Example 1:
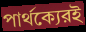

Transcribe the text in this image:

পার্থক্যেরই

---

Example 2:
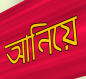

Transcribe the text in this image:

আনিয়ে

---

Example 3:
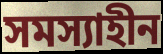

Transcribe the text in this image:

সমস্যাহীন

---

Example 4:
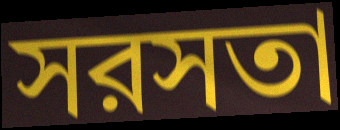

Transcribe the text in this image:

সরসতা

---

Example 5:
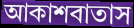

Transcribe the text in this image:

আকাশবাতাস